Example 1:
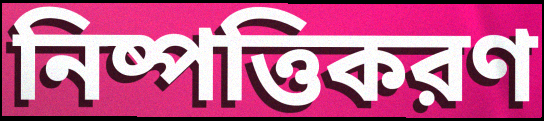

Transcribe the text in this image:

নিষ্পত্তিকরণ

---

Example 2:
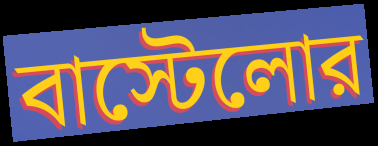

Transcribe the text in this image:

বাস্টেলোর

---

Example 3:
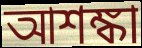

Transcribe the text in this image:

আশঙ্কা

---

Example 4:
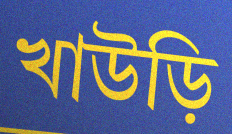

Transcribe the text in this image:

খাউড়ি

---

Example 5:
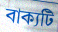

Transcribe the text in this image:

বাক্যটি